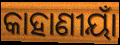
କାହାଣୀୟାଁ